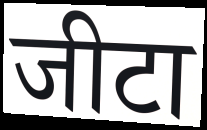
जीटा